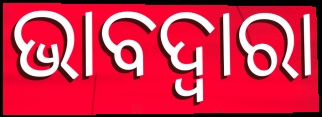
ଭାବଦ୍ଵାରା